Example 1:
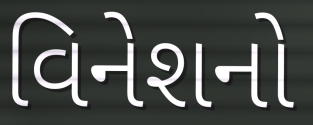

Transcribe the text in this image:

વિનેશનો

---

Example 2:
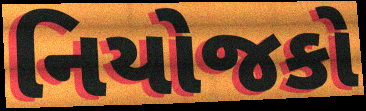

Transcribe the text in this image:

નિયોજકો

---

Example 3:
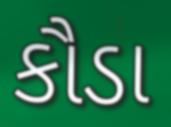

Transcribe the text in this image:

કૌડા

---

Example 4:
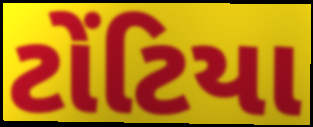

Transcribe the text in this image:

ટોંટિયા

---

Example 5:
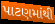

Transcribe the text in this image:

પાટણમાંથી